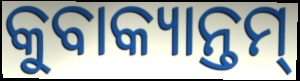
କୁବାକ୍ୟାନ୍ତମ୍